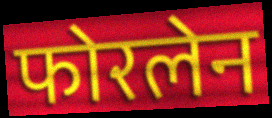
फोरलेन